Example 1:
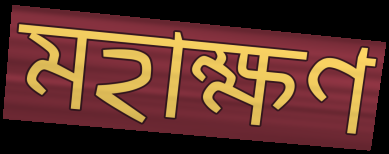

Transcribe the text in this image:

মহাক্ষণ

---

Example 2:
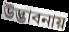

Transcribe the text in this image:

উদ্ভাবনায়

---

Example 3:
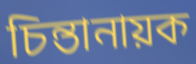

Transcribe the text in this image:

চিন্তানায়ক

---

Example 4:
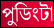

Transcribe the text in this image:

পুডিংটা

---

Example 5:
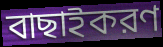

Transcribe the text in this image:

বাছাইকরণ